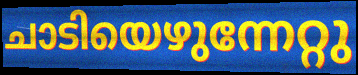
ചാടിയെഴുന്നേറ്റു